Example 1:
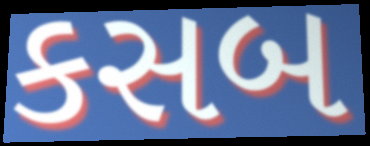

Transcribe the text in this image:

કસબ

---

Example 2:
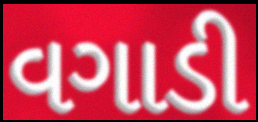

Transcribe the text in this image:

વગાડી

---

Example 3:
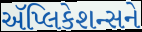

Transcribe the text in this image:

ઍપ્લિકેશન્સને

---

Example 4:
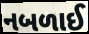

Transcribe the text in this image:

નબળાઈ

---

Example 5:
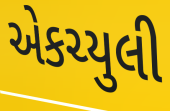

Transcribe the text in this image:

એકચ્યુલી